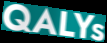
QALYs